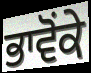
ਭਾਵੋਂਕੇ